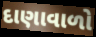
દાણાવાળો